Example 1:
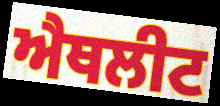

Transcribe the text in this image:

ਐਥਲੀਟ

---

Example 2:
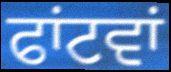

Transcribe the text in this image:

ਫਾਂਟਵਾਂ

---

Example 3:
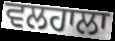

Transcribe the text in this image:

ਵਲਹਾਲਾ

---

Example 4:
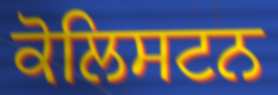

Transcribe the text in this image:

ਕੋਲਿਸਟਨ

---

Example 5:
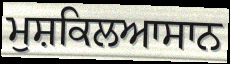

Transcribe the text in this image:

ਮੁਸ਼ਕਿਲਆਸਾਨ